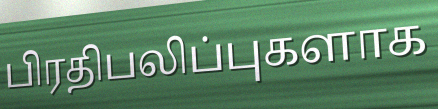
பிரதிபலிப்புகளாக